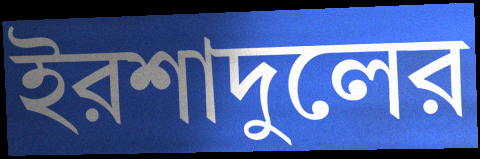
ইরশাদুলের